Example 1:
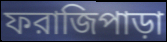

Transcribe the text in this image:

ফরাজিপাড়া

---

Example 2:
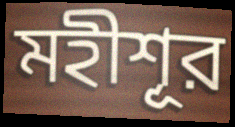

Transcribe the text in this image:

মহীশূর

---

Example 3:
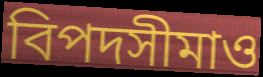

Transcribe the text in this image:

বিপদসীমাও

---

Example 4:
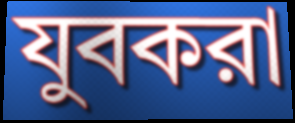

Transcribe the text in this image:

যুবকরা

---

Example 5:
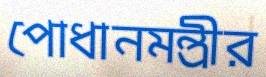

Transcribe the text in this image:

পোধানমন্ত্রীর